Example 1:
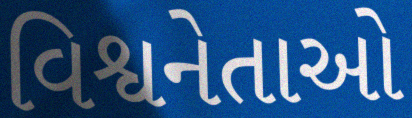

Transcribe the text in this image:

વિશ્વનેતાઓ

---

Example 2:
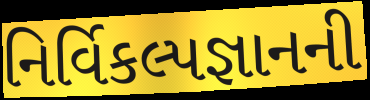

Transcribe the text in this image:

નિર્વિકલ્પજ્ઞાનની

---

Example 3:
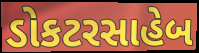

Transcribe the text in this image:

ડોકટરસાહેબ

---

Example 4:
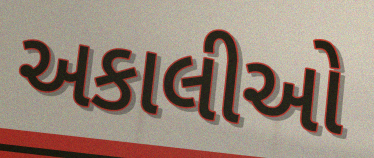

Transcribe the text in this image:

અકાલીઓ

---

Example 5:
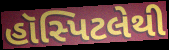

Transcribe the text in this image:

હૉસ્પિટલેથી